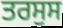
ਤਰਸੁਸ